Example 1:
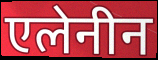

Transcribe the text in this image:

एलेनीन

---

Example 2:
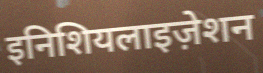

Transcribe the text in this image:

इनिशियलाइज़ेशन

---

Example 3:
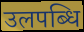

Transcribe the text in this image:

उलपब्धि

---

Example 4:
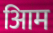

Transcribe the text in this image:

आिम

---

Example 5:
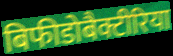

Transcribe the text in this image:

बिफीडोबैक्टीरिया